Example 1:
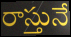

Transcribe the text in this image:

రాస్తునే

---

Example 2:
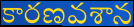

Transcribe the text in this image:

కారణవశాన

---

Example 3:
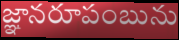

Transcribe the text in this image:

జ్ఞానరూపంబును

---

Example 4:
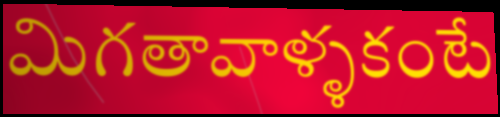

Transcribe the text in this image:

మిగతావాళ్ళకంటే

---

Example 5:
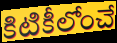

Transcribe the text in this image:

కిటికీలోంచే